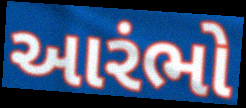
આરંભો